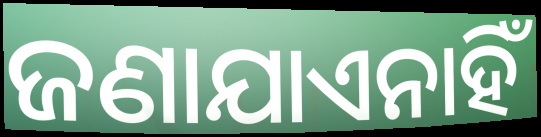
ଜଣାଯାଏନାହିଁ